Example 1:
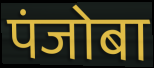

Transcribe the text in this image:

पंजोबा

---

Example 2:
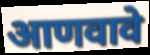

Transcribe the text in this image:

आणवावे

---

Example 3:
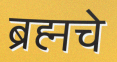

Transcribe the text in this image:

ब्रह्मचे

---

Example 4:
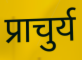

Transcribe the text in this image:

प्राचुर्य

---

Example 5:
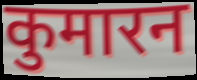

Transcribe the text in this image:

कुमारन